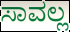
ಸಾವಲ್ಲ